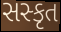
સસ્કૃત